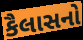
કૈલાસનો